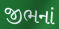
જીભનાં